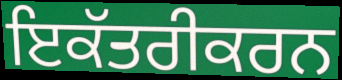
ਇਕੱਤਰੀਕਰਨ